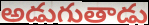
అడుగుతాడు